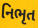
નિભૃત